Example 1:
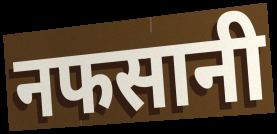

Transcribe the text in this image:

नफसानी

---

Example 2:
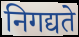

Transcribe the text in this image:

निगद्यते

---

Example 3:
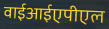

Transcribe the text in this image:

वाईआईएपीएल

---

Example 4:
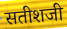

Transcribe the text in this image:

सतीशजी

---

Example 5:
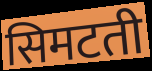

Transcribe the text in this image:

सिमटती